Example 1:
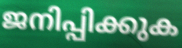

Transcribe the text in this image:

ജനിപ്പിക്കുക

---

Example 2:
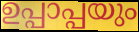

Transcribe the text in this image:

ഉപ്പാപ്പയും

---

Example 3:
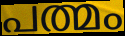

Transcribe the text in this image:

പത്മം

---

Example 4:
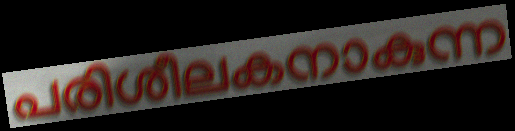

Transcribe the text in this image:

പരിശീലകനാകുന്ന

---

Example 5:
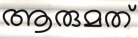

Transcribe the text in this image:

ആരുമത്